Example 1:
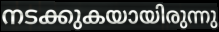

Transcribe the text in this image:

നടക്കുകയായിരുന്നു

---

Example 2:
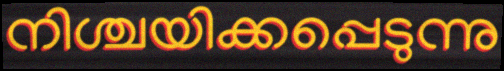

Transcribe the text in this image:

നിശ്ചയിക്കപ്പെടുന്നു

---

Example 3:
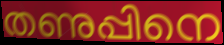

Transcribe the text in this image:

തണുപ്പിനെ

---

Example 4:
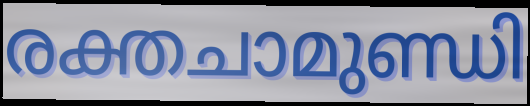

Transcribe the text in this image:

രക്തചാമുണ്ഡി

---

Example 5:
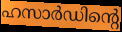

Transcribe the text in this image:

ഹസാർഡിന്റെ